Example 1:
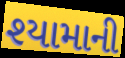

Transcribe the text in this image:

શ્યામાની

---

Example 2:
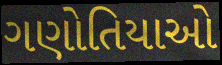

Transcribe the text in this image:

ગણોતિયાઓ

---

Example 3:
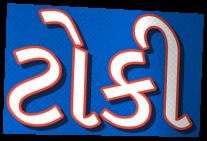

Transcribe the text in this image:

ટોકી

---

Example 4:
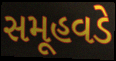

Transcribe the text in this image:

સમૂહવડે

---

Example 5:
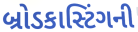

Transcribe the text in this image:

બ્રોડકાસ્ટિંગની